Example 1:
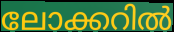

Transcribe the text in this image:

ലോക്കറിൽ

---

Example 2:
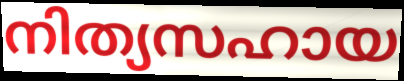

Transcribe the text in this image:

നിത്യസഹായ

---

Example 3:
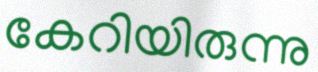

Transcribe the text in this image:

കേറിയിരുന്നു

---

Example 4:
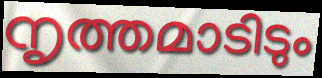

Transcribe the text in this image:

നൃത്തമാടിടും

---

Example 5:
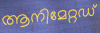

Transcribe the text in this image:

ആനിമേറ്റഡ്